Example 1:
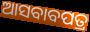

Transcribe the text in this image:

ଆସବାବପତ୍ର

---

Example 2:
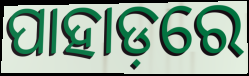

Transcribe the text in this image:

ପାହାଡ଼ରେ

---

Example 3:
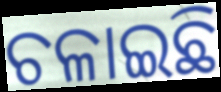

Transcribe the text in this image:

ଚଳାଇଛି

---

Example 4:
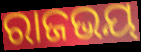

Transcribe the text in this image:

ରାଜଭୟ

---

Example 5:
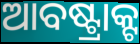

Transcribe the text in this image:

ଆବଷ୍ଟ୍ରାକ୍ଟ